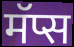
मॅप्स